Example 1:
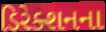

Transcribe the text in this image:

ડિરેક્શનના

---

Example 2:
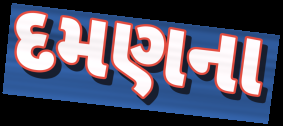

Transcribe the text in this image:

દમણના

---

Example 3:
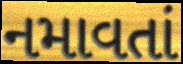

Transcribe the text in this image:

નમાવતાં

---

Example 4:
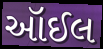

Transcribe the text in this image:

ઑઈલ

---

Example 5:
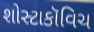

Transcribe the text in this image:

શોસ્ટાકૉવિચ